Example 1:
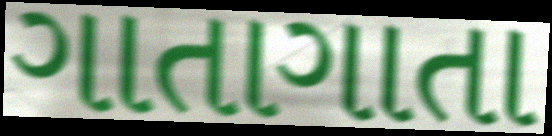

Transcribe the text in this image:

ગાતાગાતા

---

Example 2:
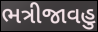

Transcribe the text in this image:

ભત્રીજાવહુ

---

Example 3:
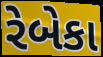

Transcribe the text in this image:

રેબેકા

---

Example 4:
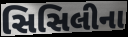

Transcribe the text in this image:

સિસિલીના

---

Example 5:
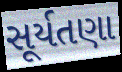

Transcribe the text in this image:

સૂર્યતણા